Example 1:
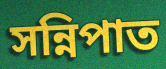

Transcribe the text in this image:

সন্নিপাত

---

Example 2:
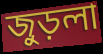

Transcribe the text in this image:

জুড়লা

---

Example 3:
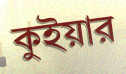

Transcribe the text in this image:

কুইয়ার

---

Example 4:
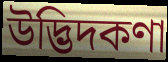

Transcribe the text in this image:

উদ্ভিদকণা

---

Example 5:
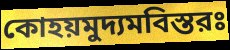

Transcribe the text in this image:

কোহয়মুদ্যমবিস্তরঃ